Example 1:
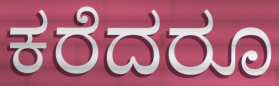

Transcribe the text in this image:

ಕರೆದರೂ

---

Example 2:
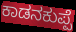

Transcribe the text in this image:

ಕಾಡನಕುಪ್ಪೆ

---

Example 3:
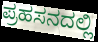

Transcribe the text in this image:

ಪ್ರಹಸನದಲ್ಲಿ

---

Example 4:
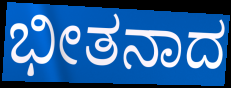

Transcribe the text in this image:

ಭೀತನಾದ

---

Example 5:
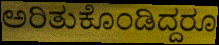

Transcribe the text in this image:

ಅರಿತುಕೊಂಡಿದ್ದರೂ